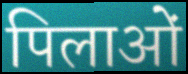
पिलाओं